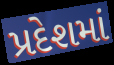
પ્રદેશમાં